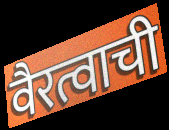
वैरत्वाची